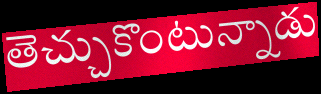
తెచ్చుకొంటున్నాడు